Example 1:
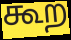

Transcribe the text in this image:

கூற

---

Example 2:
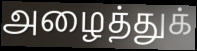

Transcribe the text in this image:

அழைத்துக்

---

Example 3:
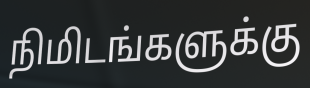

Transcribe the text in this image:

நிமிடங்களுக்கு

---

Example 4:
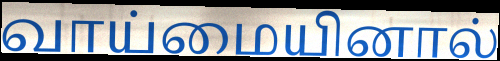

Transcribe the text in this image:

வாய்மையினால்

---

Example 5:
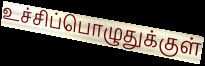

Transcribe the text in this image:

உச்சிப்பொழுதுக்குள்